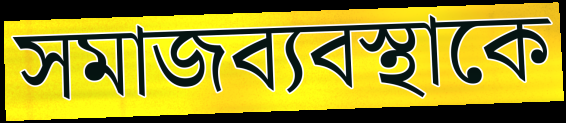
সমাজব্যবস্থাকে